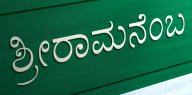
ಶ್ರೀರಾಮನೆಂಬ